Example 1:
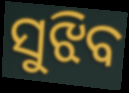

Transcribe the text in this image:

ସୁଝିବ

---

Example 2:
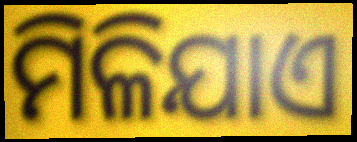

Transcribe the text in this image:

ମିଳିଯାଏ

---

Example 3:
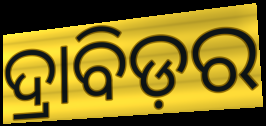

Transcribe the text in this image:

ଦ୍ରାବିଡ଼ର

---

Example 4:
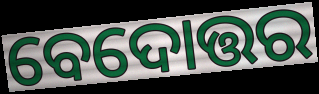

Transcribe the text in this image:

ବେଦୋତ୍ତର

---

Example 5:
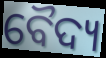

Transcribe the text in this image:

ବୈଦ୍ଯ